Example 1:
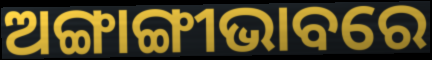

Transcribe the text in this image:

ଅଙ୍ଗାଙ୍ଗୀଭାବରେ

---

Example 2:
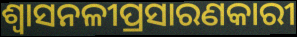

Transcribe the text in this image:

ଶ୍ୱାସନଳୀପ୍ରସାରଣକାରୀ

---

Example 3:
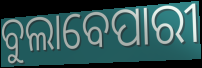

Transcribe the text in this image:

ବୁଲାବେପାରୀ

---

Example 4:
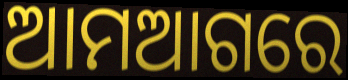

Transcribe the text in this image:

ଆମଆଗରେ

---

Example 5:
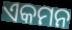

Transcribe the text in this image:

ଏକମନ